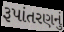
રૂપાંતરણનું